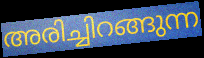
അരിച്ചിറങ്ങുന്ന